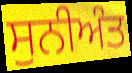
ਸੁਨੀਅੰਤ